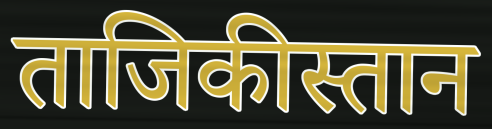
ताजिकीस्तान